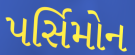
પર્સિમોન